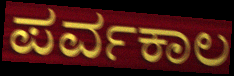
ಪರ್ವಕಾಲ